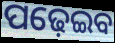
ପଢ଼େଇବ